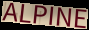
ALPINE